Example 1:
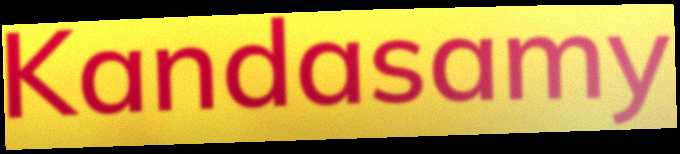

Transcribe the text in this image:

Kandasamy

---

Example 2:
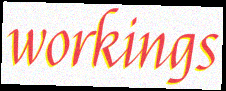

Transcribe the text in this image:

workings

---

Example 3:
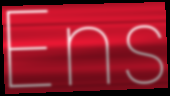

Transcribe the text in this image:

Ens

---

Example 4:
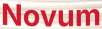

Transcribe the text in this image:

Novum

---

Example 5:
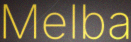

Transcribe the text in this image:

Melba